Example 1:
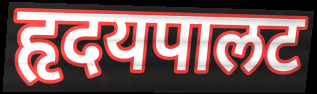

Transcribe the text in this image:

हृदयपालट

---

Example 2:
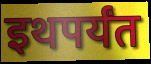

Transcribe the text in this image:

इथपर्यंत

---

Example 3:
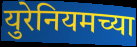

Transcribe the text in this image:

युरेनियमच्या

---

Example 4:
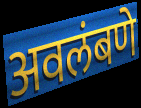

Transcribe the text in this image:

अवलंबणे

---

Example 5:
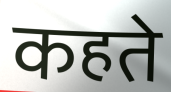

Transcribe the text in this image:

कहते